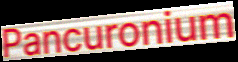
Pancuronium